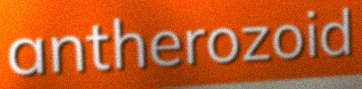
antherozoid